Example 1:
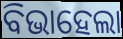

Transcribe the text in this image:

ବିଭାହେଲା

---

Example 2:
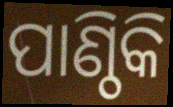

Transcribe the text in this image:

ପାଣ୍ଠିକି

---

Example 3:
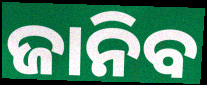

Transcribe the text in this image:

ଜାନିବ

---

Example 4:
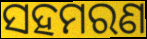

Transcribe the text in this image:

ସହମରଣ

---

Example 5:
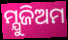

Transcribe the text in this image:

ମ୍ଯୁଜିଅମ